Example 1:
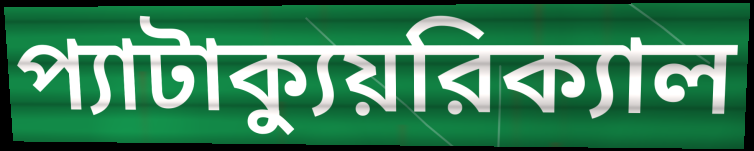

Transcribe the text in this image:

প্যাটাক্যুয়রিক্যাল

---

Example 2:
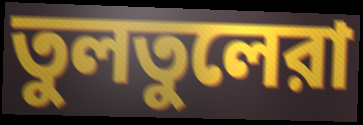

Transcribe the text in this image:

তুলতুলেরা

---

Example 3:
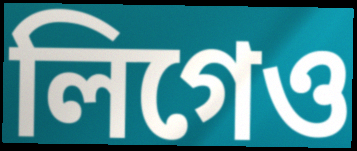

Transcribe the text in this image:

লিগেও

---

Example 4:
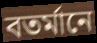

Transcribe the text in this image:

বতর্মানে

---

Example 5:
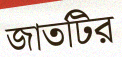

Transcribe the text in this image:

জাতটির